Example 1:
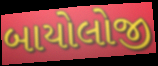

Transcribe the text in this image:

બાયોલોજી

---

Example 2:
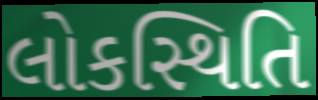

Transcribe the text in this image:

લોકસ્થિતિ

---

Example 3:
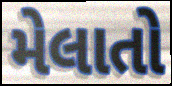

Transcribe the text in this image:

મેલાતો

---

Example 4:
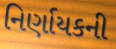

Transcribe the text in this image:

નિર્ણાયકની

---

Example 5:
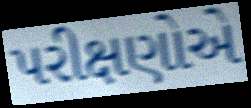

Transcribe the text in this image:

પરીક્ષણોએ